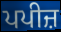
ਪਪੀਜ਼